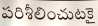
పరిశీలించుటకై